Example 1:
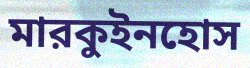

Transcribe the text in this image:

মারকুইনহোস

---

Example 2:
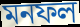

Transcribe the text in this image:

মনফল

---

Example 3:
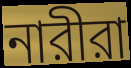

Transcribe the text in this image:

নারীরা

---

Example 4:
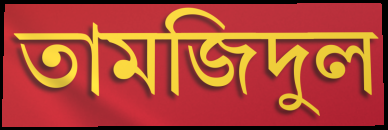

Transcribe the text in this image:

তামজিদুল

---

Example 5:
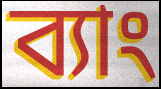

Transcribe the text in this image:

ব্যাং